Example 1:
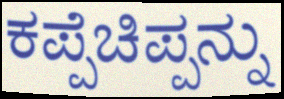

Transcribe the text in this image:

ಕಪ್ಪೆಚಿಪ್ಪನ್ನು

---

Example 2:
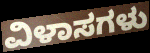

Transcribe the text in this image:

ವಿಳಾಸಗಳು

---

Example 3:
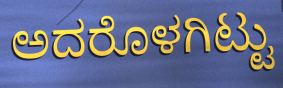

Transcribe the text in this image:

ಅದರೊಳಗಿಟ್ಟು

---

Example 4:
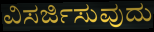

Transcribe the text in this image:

ವಿಸರ್ಜಿಸುವುದು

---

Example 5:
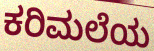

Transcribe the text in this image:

ಕರಿಮಲೆಯ